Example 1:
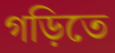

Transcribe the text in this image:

গড়িতে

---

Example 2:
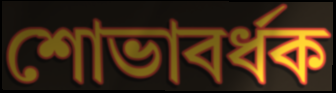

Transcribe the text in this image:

শোভাবর্ধক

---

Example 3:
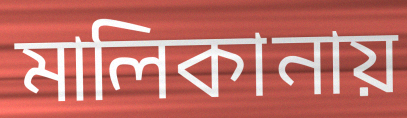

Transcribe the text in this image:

মালিকানায়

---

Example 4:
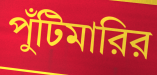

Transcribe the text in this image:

পুঁটিমারির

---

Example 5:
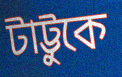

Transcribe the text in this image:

টাট্টুকে